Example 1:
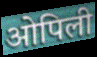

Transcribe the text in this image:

ओपिली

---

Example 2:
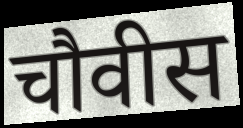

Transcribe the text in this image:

चौवीस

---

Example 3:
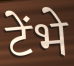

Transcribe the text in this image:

टेंभे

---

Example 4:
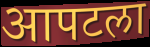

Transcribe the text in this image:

आपटला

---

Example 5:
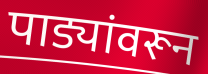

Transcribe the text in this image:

पाड्यांवरून